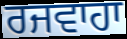
ਰਜਵਾਹਾ